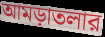
আমড়াতলার